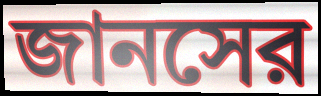
জানসের